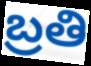
బ్రతి